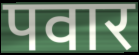
पवार